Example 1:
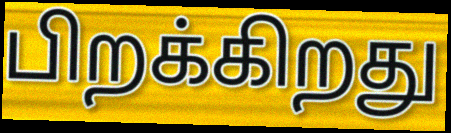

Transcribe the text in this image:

பிறக்கிறது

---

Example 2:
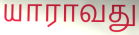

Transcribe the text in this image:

யாராவது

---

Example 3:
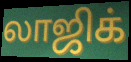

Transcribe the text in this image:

லாஜிக்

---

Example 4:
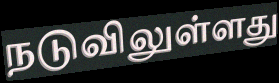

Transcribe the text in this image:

நடுவிலுள்ளது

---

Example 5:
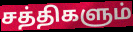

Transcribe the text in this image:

சத்திகளும்